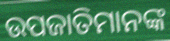
ଉପଜାତିମାନଙ୍କ